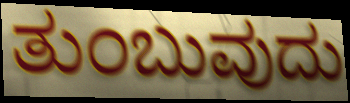
ತುಂಬುವುದು